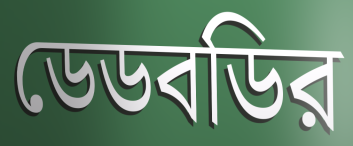
ডেডবডির